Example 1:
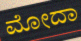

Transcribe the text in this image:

ಮೋದಾ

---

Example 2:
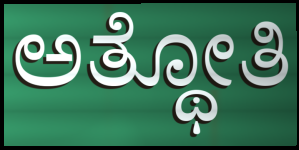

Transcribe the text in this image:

ಅತ್ಥೋತಿ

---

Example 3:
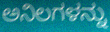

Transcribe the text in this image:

ಅನಿಲಗಳನ್ನು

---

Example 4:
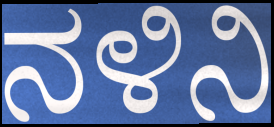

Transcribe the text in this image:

ನಳಿನಿ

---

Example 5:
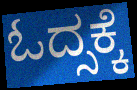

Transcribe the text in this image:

ಓದ್ಸಕ್ಕೆ